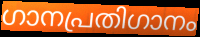
ഗാനപ്രതിഗാനം